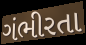
ગંભીરતા